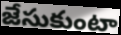
జేసుకుంటా